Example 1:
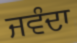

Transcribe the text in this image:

ਜਵੰਦਾ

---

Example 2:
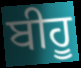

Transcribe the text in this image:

ਬੀਹੂ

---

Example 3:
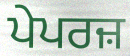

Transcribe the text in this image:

ਪੇਪਰਜ਼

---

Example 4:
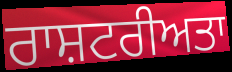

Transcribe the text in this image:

ਰਾਸ਼ਟਰੀਅਤਾ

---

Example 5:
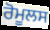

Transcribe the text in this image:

ਰੋਮੂਲਸ